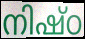
നിഷ്ഠ